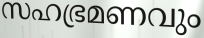
സഹഭ്രമണവും